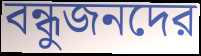
বন্ধুজনদের